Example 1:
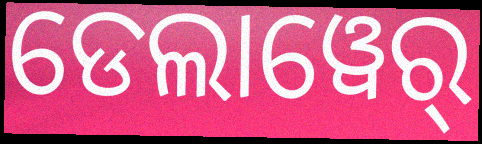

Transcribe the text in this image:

ଡେଲାୱେର୍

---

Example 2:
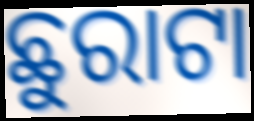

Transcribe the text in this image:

ଛୁରାଟା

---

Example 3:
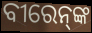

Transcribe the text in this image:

ବୀରେନ୍‍ଙ୍କ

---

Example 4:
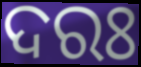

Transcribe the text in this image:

ଦରଃ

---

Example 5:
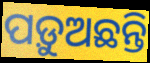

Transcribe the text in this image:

ପଡ଼ୁଅଛନ୍ତି